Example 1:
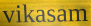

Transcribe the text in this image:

vikasam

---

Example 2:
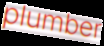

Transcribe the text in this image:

plumber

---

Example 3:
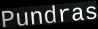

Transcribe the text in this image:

Pundras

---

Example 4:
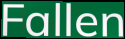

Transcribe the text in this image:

Fallen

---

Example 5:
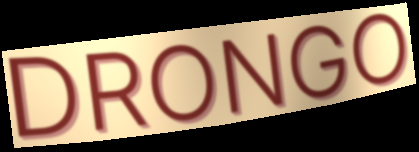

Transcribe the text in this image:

DRONGO